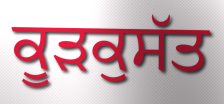
ਕੂੜਕੁਸੱਤ